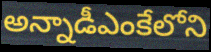
అన్నాడీఎంకేలోని